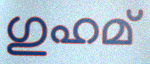
ഗുഹമ്